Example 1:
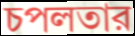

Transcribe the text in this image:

চপলতার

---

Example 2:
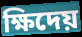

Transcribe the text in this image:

ক্ষিদেয়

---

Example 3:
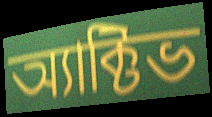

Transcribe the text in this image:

অ্যাক্টিভ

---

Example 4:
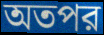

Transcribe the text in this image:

অতপর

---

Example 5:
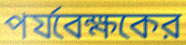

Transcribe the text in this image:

পর্যবেক্ষকের